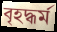
বৃহদ্ধৰ্ম